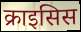
क्राइसिस